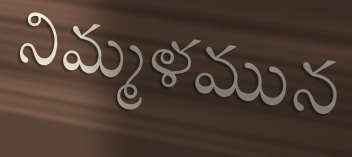
నిమ్మళమున